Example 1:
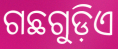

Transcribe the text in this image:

ଗଛଗୁଡ଼ିଏ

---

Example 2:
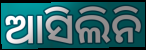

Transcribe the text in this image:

ଆସିଲିନି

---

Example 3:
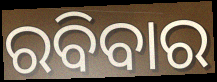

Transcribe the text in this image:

ରବିବାର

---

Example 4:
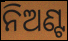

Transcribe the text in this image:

ନିଅଣ୍ଟ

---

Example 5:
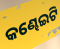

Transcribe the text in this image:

କଣ୍ଢେଇଟି